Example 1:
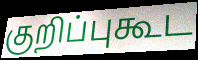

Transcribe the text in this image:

குறிப்புகூட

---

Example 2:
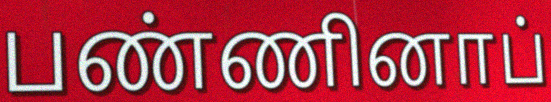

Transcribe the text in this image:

பண்ணினாப்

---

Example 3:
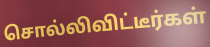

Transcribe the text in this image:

சொல்லிவிட்டீர்கள்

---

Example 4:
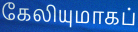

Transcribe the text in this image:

கேலியுமாகப்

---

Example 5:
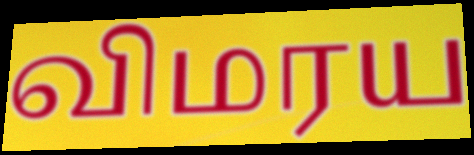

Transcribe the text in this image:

விமரய